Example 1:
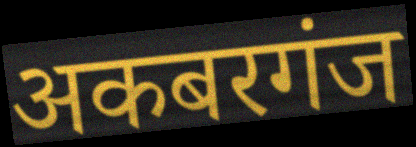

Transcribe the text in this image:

अकबरगंज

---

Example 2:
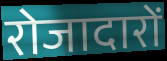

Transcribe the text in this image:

रोजादारों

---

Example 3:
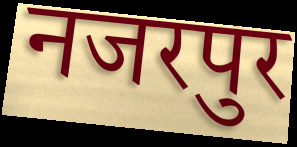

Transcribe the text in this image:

नजरपुर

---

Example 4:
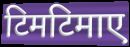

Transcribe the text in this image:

टिमटिमाए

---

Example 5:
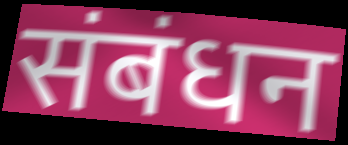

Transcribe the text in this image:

संबंधन